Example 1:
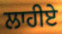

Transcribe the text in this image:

ਲਾਹੀਏ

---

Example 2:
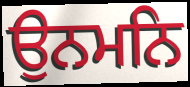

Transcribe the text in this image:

ਉਨਮਨਿ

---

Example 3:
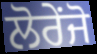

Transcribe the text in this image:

ਲੋਰੇਂਜੋ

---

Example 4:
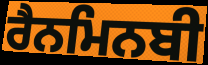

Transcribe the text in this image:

ਰੈਨਮਿਨਬੀ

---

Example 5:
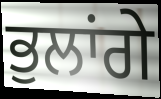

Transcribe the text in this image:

ਭੁਲਾਂਗੇ